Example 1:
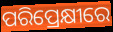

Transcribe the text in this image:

ପରିପ୍ରେକ୍ଷୀରେ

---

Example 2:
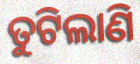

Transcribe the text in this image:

ତୁଟିଲାଣି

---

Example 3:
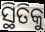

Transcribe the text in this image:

ସ୍ଥିତିକୁ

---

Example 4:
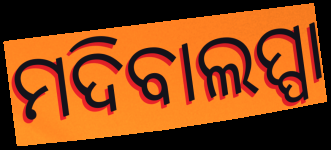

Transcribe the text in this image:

ମଦିବାଲପ୍ପା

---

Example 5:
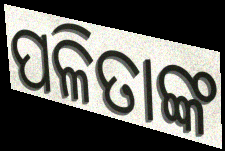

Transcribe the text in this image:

ପଳିତାଙ୍କ